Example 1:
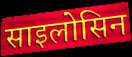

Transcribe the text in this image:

साइलोसिन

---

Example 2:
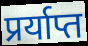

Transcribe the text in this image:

प्रर्याप्त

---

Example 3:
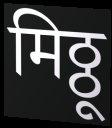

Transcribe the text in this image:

मिठ्ठू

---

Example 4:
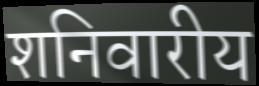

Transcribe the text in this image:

शनिवारीय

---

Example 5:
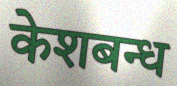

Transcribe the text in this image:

केशबन्ध